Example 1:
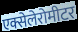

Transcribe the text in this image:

एक्सेलेरोमीटर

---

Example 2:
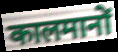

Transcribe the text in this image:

कालमानों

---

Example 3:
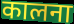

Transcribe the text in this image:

कालना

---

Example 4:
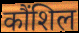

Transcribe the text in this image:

कौंशिल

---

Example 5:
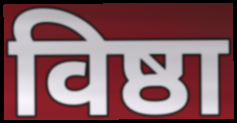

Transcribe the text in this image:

विष्ठा